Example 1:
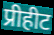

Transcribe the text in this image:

प्रीहीट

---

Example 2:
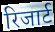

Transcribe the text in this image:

रिजार्ट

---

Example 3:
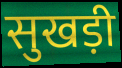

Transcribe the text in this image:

सुखड़ी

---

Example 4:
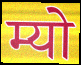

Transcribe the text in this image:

म्यो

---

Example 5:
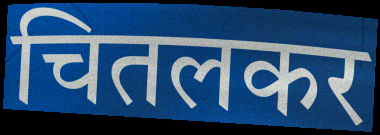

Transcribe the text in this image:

चितलकर